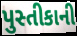
પુસ્તીકાની